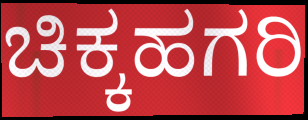
ಚಿಕ್ಕಹಗರಿ